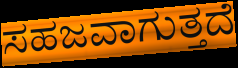
ಸಹಜವಾಗುತ್ತದೆ